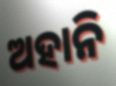
ଅହାନି